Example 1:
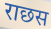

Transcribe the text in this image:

राछस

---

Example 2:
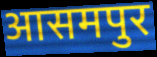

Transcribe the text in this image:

आसमपुर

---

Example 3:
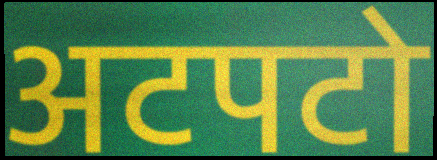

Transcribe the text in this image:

अटपटो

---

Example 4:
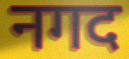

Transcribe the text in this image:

नगद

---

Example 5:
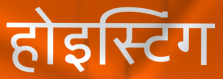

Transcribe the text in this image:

होइस्टिंग